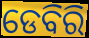
ଡେବିରି